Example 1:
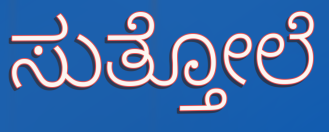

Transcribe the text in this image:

ಸುತ್ತೋಲೆ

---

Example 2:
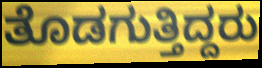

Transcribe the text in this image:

ತೊಡಗುತ್ತಿದ್ದರು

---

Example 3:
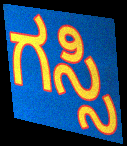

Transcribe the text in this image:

ಗಸ್ಸಿ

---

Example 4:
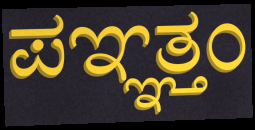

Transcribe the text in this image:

ಪಞ್ಞತ್ತಂ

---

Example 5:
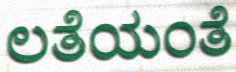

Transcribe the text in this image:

ಲತೆಯಂತೆ